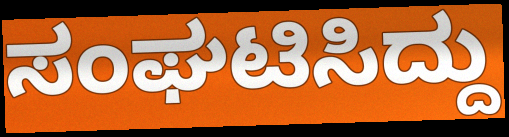
ಸಂಘಟಿಸಿದ್ದು